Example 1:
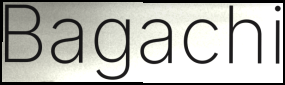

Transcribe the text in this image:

Bagachi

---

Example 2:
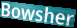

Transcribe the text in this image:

Bowsher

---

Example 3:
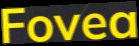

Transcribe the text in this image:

Fovea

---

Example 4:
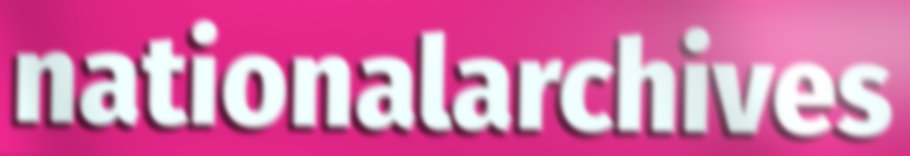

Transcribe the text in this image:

nationalarchives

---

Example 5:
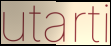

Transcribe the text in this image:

utarti